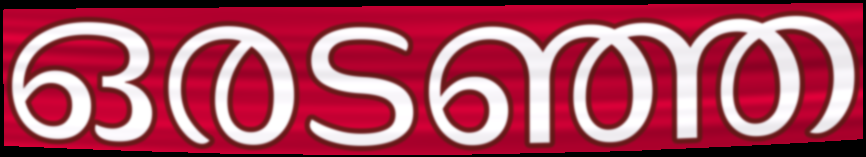
ഒരടഞ്ഞ